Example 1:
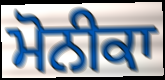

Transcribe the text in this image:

ਮੋਨੀਕਾ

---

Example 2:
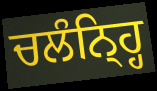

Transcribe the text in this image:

ਚਲੰਨ੍ਹ੍ਹਿ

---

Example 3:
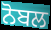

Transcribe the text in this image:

ਨੋਬਲ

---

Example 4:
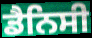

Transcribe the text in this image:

ਡੈਨਿਸੀ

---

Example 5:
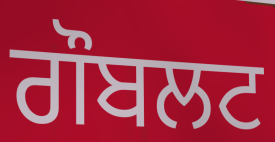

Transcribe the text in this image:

ਗੌਬਲਟ